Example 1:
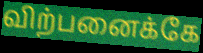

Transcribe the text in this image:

விற்பனைக்கே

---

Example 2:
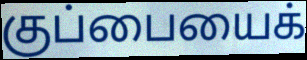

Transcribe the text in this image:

குப்பையைக்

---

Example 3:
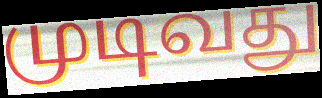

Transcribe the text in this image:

முடிவது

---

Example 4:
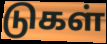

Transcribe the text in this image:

டுகள்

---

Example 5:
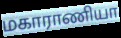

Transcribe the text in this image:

மகாராணியா